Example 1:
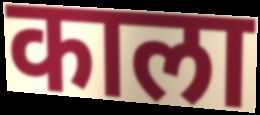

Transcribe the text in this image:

काला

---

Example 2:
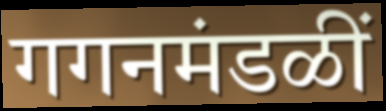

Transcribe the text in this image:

गगनमंडळीं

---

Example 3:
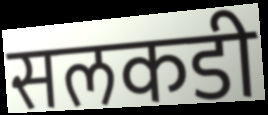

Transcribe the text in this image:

सलकडी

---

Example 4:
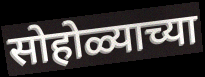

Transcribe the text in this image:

सोहोळ्याच्या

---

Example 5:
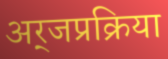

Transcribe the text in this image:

अर्जप्रक्रिया